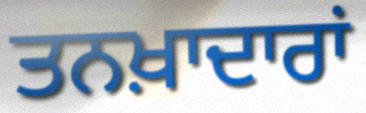
ਤਨਖ਼ਾਦਾਰਾਂ